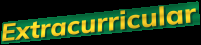
Extracurricular